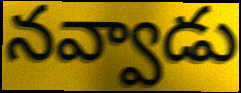
నవ్వాడు